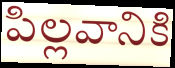
పిల్లవానికి